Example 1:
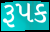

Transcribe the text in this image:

રૂપક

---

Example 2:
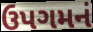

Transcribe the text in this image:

ઉપગમનં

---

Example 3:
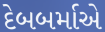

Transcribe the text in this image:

દેબબર્માએ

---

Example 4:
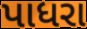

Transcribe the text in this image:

પાધરા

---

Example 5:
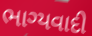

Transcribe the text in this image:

ભાગ્યવાદી